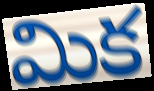
మిక